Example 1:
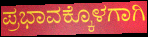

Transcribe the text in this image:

ಪ್ರಭಾವಕ್ಕೊಳಗಾಗಿ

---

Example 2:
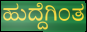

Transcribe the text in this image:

ಹುದ್ದೆಗಿಂತ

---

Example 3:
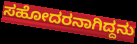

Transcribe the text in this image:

ಸಹೋದರನಾಗಿದ್ದನು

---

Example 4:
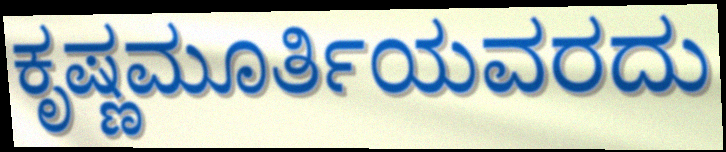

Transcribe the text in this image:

ಕೃಷ್ಣಮೂರ್ತಿಯವರದು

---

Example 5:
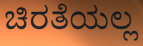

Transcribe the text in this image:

ಚಿರತೆಯಲ್ಲ